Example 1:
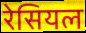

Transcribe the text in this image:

रेसियल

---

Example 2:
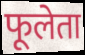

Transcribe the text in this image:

फूलेता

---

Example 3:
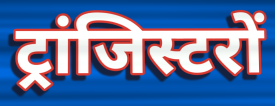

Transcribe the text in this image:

ट्रांजिस्टरों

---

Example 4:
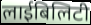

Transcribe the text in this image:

लाईबिलिटी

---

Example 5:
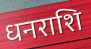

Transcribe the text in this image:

धनराशि